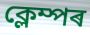
ক্লেম্পৰ